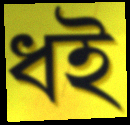
ধই